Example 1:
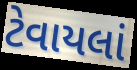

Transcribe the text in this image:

ટેવાયલાં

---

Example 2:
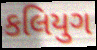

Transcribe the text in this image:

કલિયુગ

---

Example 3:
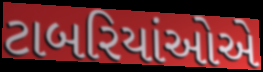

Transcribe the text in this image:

ટાબરિયાંઓએ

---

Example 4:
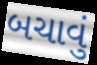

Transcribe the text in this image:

બચાવું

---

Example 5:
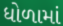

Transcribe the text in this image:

ધોળામાં